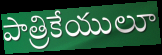
పాత్రికేయులూ